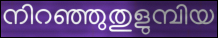
നിറഞ്ഞുതുളുമ്പിയ